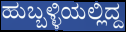
ಹುಬ್ಬಳ್ಳಿಯಲ್ಲಿದ್ದ